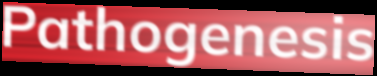
Pathogenesis